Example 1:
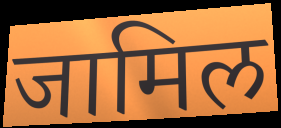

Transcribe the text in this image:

जामिल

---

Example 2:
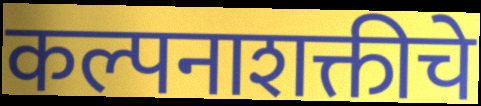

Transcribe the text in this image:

कल्पनाशक्तीचे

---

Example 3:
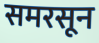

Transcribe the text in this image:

समरसून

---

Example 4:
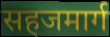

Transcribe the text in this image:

सहजमार्ग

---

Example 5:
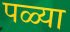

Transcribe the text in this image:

पळ्या